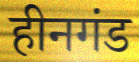
हीनगंड